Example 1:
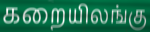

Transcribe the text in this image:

கறையிலங்கு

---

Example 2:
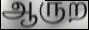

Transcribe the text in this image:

ஆருற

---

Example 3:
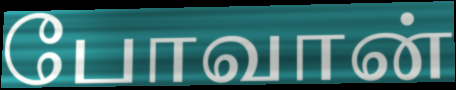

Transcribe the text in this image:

போவான்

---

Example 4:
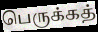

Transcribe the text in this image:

பெருக்கத்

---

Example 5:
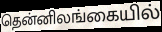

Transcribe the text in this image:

தென்னிலங்கையில்